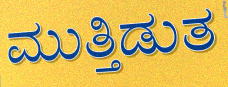
ಮುತ್ತಿಡುತ